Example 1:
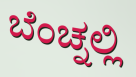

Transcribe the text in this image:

ಬೆಂಚ್ನಲ್ಲಿ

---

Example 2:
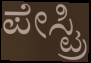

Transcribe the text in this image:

ಪೇಸ್ಟ್ರಿ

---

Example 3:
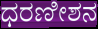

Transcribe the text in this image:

ಧರಣೀಶನ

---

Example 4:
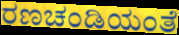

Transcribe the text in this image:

ರಣಚಂಡಿಯಂತೆ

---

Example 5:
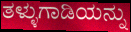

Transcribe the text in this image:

ತಳ್ಳುಗಾಡಿಯನ್ನು